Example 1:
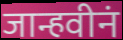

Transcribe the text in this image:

जान्हवीनं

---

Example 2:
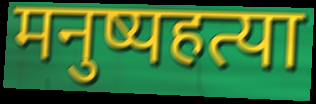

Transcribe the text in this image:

मनुष्यहत्या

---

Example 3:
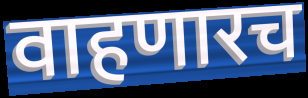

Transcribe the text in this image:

वाहणारच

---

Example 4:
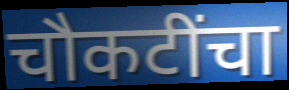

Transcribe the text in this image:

चौकटींचा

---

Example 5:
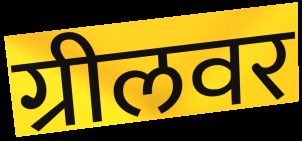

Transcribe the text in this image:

ग्रीलवर